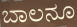
ಬಾಲನೂ